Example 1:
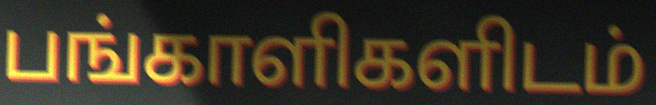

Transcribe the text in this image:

பங்காளிகளிடம்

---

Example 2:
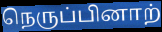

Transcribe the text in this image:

நெருப்பினாற்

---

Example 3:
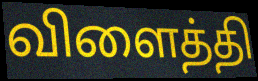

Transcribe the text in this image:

விளைத்தி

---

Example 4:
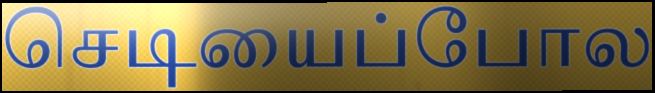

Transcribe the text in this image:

செடியைப்போல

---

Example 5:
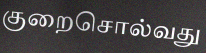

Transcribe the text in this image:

குறைசொல்வது